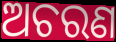
ଅଚରଣ